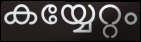
കയ്യേറ്റം